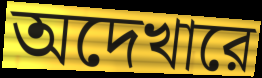
অদেখারে